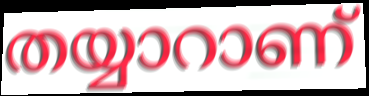
തയ്യാറാണ്